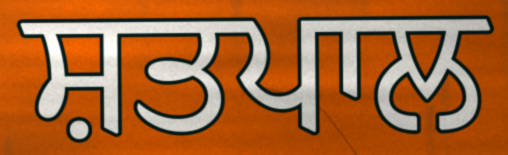
ਸ਼ਤਪਾਲ